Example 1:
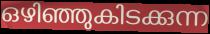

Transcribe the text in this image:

ഒഴിഞ്ഞുകിടക്കുന്ന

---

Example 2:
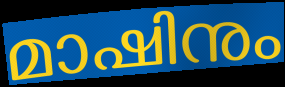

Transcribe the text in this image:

മാഷിനും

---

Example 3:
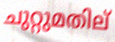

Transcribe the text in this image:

ചുറ്റുമതില്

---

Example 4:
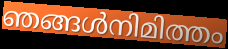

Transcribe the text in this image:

ഞങ്ങൾനിമിത്തം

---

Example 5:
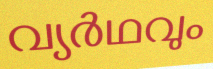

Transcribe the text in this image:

വ്യർഥവും